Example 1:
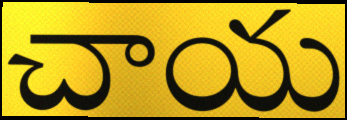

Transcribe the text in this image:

చాయ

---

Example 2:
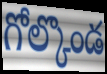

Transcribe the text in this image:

గోల్కొండ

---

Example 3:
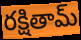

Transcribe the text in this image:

రక్షితామ్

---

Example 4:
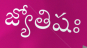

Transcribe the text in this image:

జ్యోతిషః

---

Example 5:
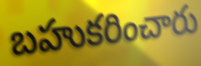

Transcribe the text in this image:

బహుకరించారు